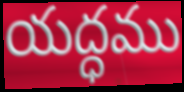
యద్ధము